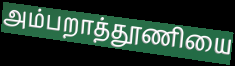
அம்பறாத்தூணியை